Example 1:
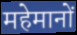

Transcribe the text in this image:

महेमानों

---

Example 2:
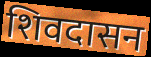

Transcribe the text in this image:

शिवदासन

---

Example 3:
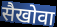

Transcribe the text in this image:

सैखोवा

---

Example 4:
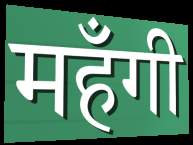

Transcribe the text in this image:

महँगी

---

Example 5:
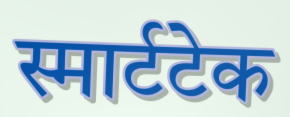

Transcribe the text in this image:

स्मार्टटेक